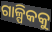
ଗାଳ୍ପିକକୁ